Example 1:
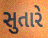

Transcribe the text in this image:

સુતારે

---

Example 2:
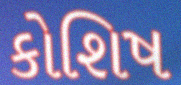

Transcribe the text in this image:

કોશિષ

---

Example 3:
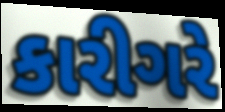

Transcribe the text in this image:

કારીગરે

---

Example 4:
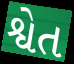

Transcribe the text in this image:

શ્વેત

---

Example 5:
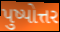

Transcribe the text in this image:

પુષ્પોત્તર